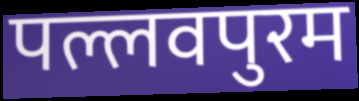
पल्लवपुरम